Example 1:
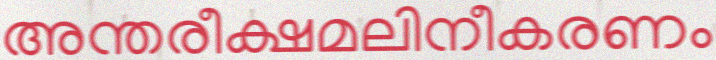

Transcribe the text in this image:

അന്തരീക്ഷമലിനീകരണം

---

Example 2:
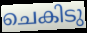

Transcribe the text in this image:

ചെകിടു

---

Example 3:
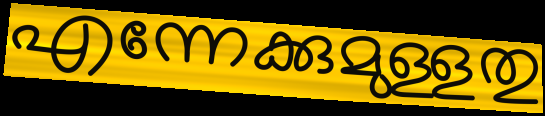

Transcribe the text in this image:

എന്നേക്കുമുള്ളതു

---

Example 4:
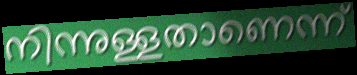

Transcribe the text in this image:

നിന്നുള്ളതാണെന്ന്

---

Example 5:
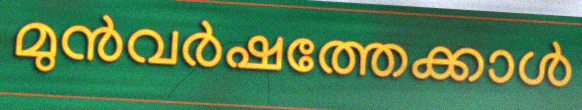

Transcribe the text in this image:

മുൻവർഷത്തേക്കാൾ